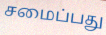
சமைப்பது